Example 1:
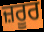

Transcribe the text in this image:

ਜ਼ਰੂਰ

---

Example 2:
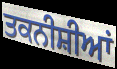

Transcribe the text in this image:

ਤਕਨੀਸ਼ੀਆਂ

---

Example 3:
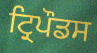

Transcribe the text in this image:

ਟ੍ਰਿਪੌਡਸ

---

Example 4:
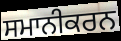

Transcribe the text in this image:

ਸਮਾਨੀਕਰਨ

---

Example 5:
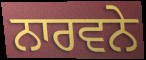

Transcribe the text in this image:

ਨਾਰਵਨੇ